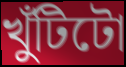
খুঁটিটো